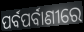
ପର୍ବପର୍ବାଣୀରେ